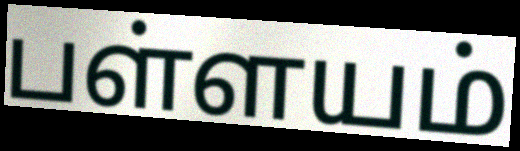
பள்ளயம்